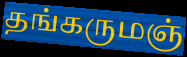
தங்கருமஞ்